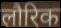
लौरिक